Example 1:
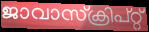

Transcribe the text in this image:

ജാവാസ്ക്രിപ്റ്റ്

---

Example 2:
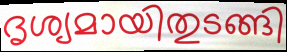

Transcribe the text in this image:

ദൃശ്യമായിതുടങ്ങി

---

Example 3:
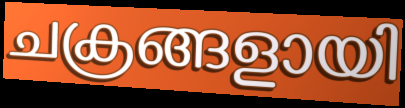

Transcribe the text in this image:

ചക്രങ്ങളായി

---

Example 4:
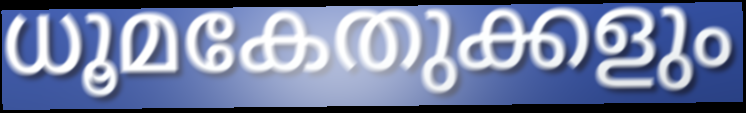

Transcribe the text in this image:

ധൂമകേതുക്കളും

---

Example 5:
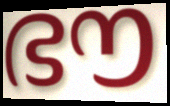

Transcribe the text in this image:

ഭൗ